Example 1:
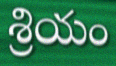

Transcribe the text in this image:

శ్రియం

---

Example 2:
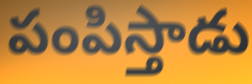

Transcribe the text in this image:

పంపిస్తాడు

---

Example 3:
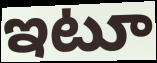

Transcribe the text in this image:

ఇటూ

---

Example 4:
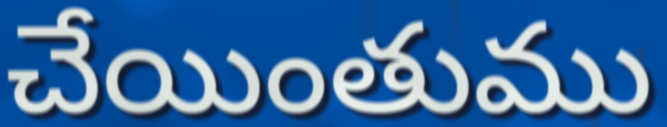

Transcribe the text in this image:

చేయింతుము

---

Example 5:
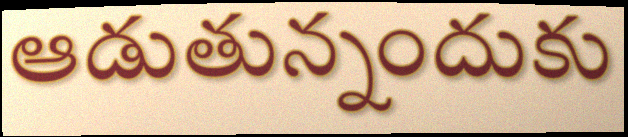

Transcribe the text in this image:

ఆడుతున్నందుకు